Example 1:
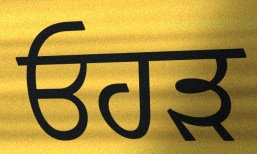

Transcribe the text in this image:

ਓਹੜ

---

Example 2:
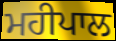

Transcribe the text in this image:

ਮਹੀਪਾਲ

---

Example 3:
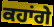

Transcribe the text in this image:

ਕਹਾਂਗੇ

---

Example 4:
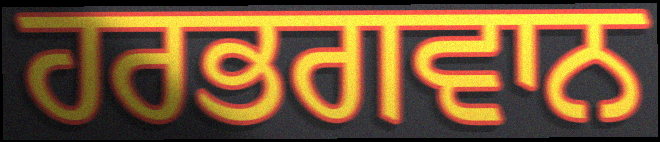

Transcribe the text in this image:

ਹਰਭਗਵਾਨ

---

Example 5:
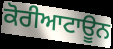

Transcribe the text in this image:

ਕੋਰੀਆਟਾਊਨ